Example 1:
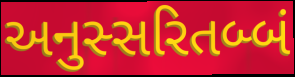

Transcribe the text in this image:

અનુસ્સરિતબ્બં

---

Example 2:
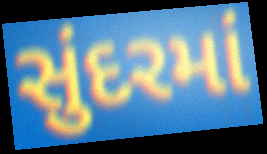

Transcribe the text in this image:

સુંદરમાં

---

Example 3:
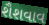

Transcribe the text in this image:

શૈશવાવ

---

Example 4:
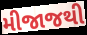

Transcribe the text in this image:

મીજાજથી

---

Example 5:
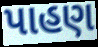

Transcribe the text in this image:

પાહણ